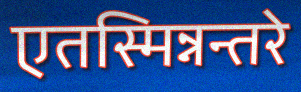
एतस्मिन्नन्तरे